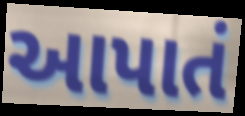
આપાતં